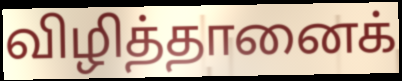
விழித்தானைக்